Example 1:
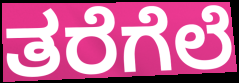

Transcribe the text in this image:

ತರೆಗೆಲೆ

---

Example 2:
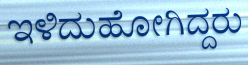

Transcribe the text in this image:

ಇಳಿದುಹೋಗಿದ್ದರು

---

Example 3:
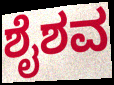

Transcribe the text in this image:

ಶೈಶವ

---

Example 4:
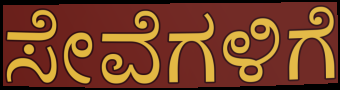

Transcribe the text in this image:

ಸೇವೆಗಳಿಗೆ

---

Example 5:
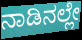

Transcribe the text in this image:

ನಾಡಿನಲ್ಲೇ